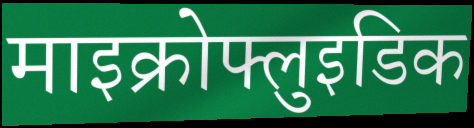
माइक्रोफ्लुइडिक